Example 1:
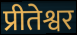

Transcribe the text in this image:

प्रीतेश्वर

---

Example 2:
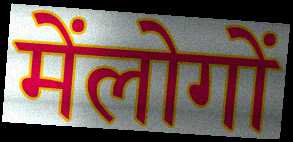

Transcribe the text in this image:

मेंलोगों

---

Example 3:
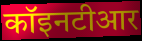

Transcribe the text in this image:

कॉइनटीआर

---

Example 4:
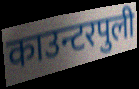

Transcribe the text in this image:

काउन्टरपुली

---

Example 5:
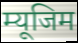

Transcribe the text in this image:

म्यूजिम